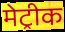
मेट्रीक